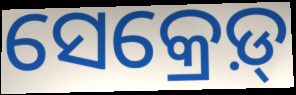
ସେକ୍ରେଡ଼୍